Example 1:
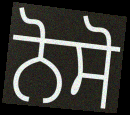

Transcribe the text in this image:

ਨੋਸੋ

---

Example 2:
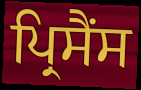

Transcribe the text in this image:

ਪ੍ਰਿਸੈਂਸ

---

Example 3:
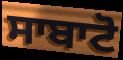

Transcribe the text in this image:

ਸਾਬਾਟੋ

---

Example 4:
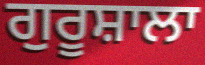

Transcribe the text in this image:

ਗੁਰੂਸ਼ਾਲਾ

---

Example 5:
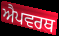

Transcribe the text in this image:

ਐਪਵਰਥ